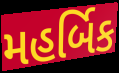
મહર્બિક